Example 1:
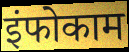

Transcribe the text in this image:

इंफोकाम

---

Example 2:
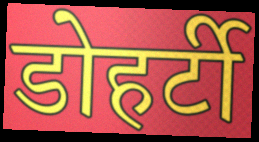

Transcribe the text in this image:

डोहर्टी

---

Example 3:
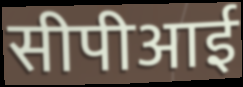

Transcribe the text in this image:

सीपीआई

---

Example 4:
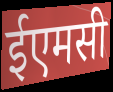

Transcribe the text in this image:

ईएमसी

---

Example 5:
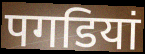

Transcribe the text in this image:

पगडियां